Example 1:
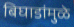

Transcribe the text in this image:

बिघाडांमुळे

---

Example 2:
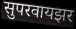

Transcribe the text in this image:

सुपरवायझर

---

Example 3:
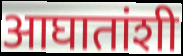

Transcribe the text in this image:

आघातांशी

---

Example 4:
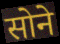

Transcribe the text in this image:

सोने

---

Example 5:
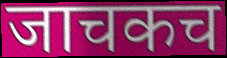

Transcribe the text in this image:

जाचकच